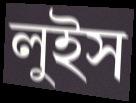
লুইস